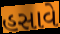
હસાવે